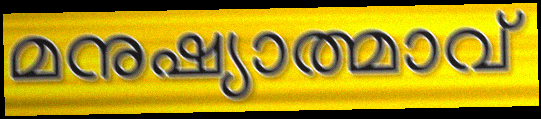
മനുഷ്യാത്മാവ്